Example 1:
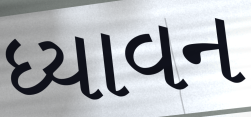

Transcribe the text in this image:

ધ્યાવન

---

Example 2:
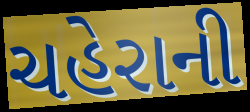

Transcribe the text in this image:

ચહેરાની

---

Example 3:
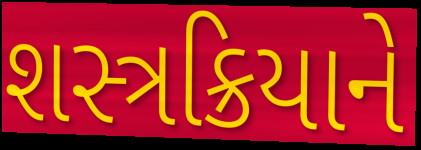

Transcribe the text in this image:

શસ્ત્રક્રિયાને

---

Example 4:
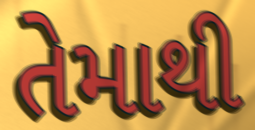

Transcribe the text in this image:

તેમાથી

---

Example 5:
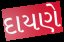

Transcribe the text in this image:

દાયણે